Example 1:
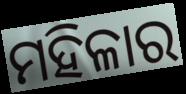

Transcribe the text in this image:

ମହିଳାର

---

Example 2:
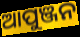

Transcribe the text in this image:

ଆପୁଞ୍ଜନ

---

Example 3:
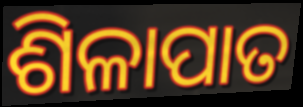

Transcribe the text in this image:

ଶିଳାପାତ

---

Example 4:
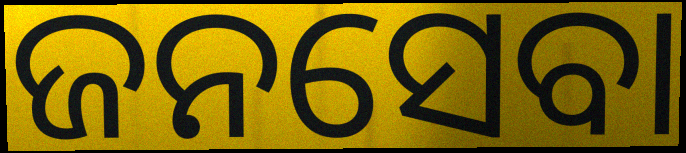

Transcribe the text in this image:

ଜନସେବା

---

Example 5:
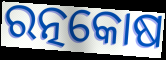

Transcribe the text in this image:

ରତ୍ନକୋଷ